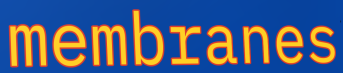
membranes